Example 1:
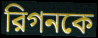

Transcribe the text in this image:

রিগনকে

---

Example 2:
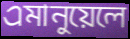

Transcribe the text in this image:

এমানুয়েলে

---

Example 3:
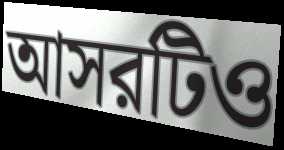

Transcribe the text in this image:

আসরটিও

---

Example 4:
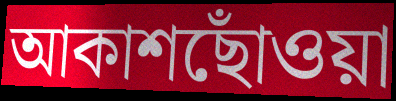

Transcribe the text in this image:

আকাশছোঁওয়া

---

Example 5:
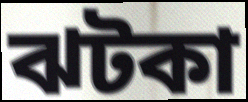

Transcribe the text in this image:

ঝটকা